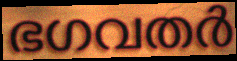
ഭഗവതർ